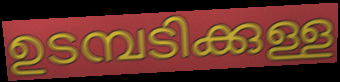
ഉടമ്പടിക്കുള്ള